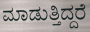
ಮಾಡುತ್ತಿದ್ದರೆ